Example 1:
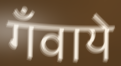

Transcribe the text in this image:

गँवाये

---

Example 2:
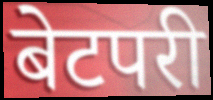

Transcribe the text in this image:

बेटपरी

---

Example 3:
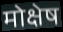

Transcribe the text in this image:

मोक्षेष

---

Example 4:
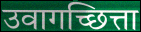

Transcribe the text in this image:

उवागच्छित्ता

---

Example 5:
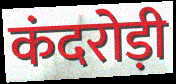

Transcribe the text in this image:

कंदरोड़ी